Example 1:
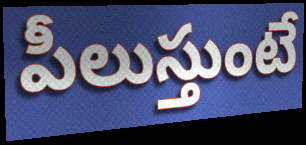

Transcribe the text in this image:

పీలుస్తుంటే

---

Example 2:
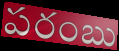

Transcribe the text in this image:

పరంబు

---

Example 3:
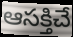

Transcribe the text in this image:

ఆసక్తిచే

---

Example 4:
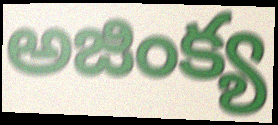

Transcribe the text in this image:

అజింక్య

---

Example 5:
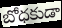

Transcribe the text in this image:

బోధకుడా